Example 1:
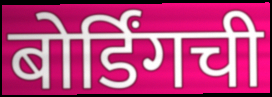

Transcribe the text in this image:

बोर्डिंगची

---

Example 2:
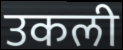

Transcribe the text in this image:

उकली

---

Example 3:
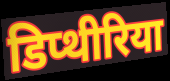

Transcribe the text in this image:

डिप्थीरिया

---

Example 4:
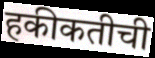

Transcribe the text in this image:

हकीकतीची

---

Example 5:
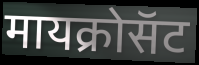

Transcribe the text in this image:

मायक्रोसॅट